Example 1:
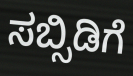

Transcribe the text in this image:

ಸಬ್ಸಿಡಿಗೆ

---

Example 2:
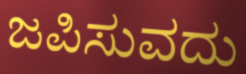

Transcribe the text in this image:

ಜಪಿಸುವದು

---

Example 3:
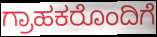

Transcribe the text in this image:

ಗ್ರಾಹಕರೊಂದಿಗೆ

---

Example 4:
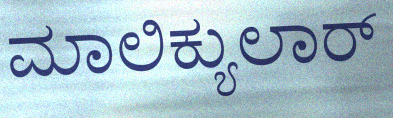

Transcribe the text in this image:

ಮಾಲಿಕ್ಯುಲಾರ್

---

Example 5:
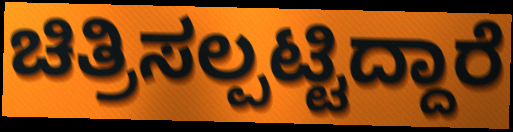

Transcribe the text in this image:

ಚಿತ್ರಿಸಲ್ಪಟ್ಟಿದ್ದಾರೆ